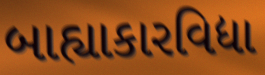
બાહ્યાકારવિદ્યા